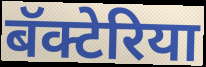
बॅक्टेरिया